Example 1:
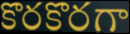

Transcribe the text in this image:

కొరకొరగా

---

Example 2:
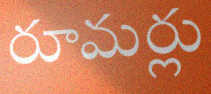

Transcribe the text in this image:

రూమర్లు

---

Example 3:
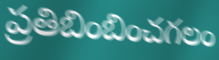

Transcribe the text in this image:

ప్రతిబింబించగలం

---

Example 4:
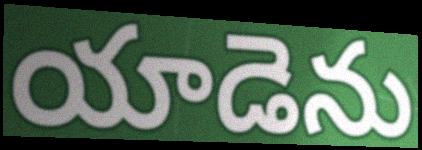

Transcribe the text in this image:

యాడెను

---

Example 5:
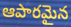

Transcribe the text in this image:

ఆపారమైన